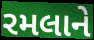
રમલાને